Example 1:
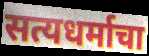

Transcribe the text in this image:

सत्यधर्माचा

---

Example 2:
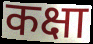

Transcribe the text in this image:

कक्षा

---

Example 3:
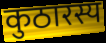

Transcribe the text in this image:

कुठारस्य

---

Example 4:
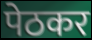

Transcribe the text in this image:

पेठकर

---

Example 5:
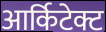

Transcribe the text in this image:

आर्किटेक्ट